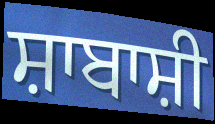
ਸ਼ਾਬਾਸ਼ੀ